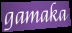
gamaka